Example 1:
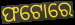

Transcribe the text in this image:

ଫଟୋରେ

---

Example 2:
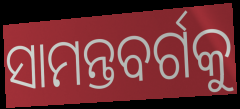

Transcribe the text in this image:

ସାମନ୍ତବର୍ଗକୁ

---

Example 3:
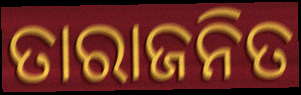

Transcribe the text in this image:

ତାରାଜନିତ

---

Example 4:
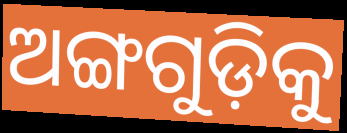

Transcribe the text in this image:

ଅଙ୍ଗଗୁଡ଼ିକୁ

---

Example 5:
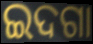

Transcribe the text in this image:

ଇଦଗା